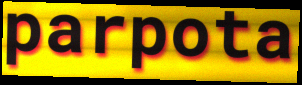
parpota